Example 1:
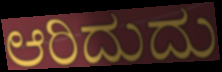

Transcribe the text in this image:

ಆರಿದುದು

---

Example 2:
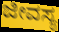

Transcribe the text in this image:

ಜೀವಸ್ಯ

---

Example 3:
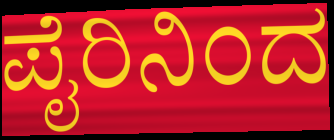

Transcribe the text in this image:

ಪೈರಿನಿಂದ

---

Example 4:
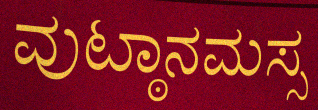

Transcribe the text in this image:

ವುಟ್ಠಾನಮಸ್ಸ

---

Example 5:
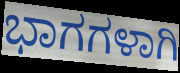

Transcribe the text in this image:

ಭಾಗಗಳಾಗಿ